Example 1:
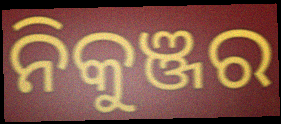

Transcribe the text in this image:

ନିକୁଞ୍ଜର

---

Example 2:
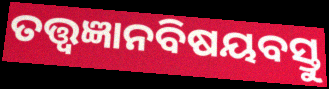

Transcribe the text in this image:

ତତ୍ତ୍ୱଜ୍ଞାନବିଷୟବସ୍ତୁ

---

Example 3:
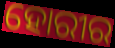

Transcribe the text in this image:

ହୋରୀର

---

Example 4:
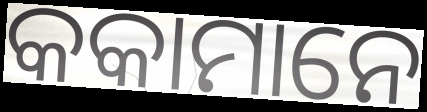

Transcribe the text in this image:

କକାମାନେ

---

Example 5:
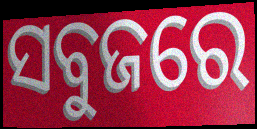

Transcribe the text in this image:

ସବୁଜରେ